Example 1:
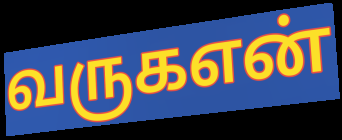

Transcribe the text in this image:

வருகஎன்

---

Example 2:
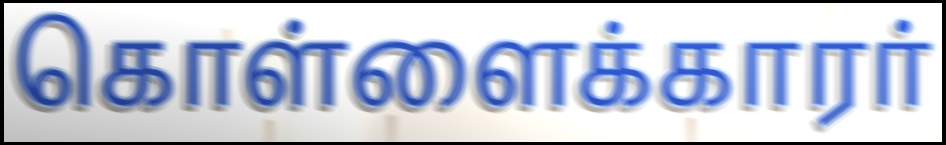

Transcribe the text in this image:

கொள்ளைக்காரர்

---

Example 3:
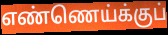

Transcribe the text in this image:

எண்ணெய்க்குப்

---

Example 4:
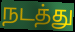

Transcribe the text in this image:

நடத்து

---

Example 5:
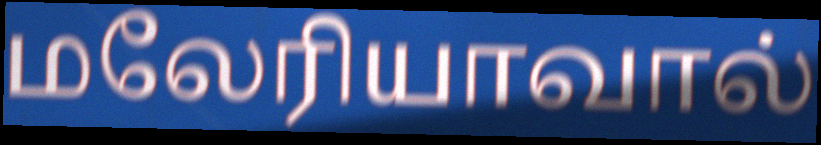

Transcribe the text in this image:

மலேரியாவால்